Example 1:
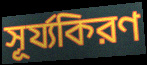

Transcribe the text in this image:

সূর্য্যকিরণ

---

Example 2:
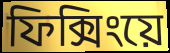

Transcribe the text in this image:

ফিক্সিংয়ে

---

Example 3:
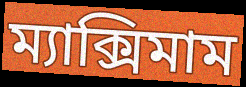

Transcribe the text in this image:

ম্যাক্সিমাম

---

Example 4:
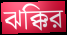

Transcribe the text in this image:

ঝক্কির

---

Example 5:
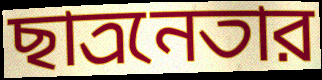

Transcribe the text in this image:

ছাত্রনেতার